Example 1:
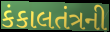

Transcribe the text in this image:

કંકાલતંત્રની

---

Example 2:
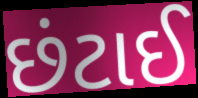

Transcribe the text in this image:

છંટાઈ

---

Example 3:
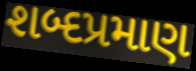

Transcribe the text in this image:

શબ્દપ્રમાણ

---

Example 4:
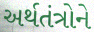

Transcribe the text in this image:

અર્થતંત્રોને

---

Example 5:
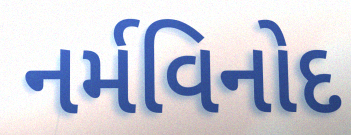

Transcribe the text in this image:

નર્મવિનોદ